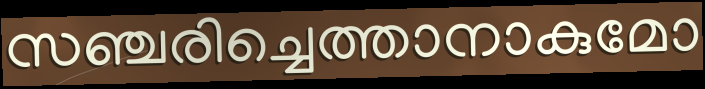
സഞ്ചരിച്ചെത്താനാകുമോ